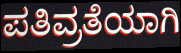
ಪತಿವ್ರತೆಯಾಗಿ